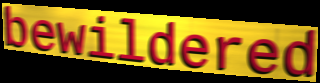
bewildered